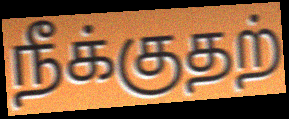
நீக்குதற்